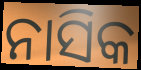
ନାସିକ